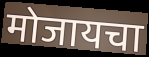
मोजायचा